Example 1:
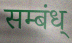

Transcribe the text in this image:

सम्बंध्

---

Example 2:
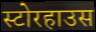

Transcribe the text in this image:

स्टोरहाउस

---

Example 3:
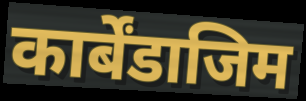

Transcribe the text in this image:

कार्बेंडाजिम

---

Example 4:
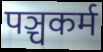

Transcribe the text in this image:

पञ्चकर्म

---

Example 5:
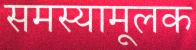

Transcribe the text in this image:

समस्यामूलक